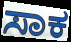
ಸಾಕ